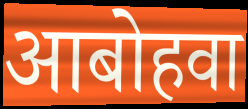
आबोहवा